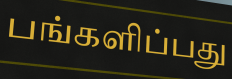
பங்களிப்பது